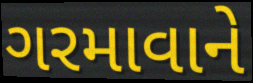
ગરમાવાને